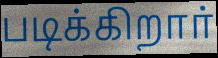
படிக்கிறார்